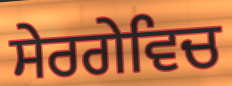
ਸੇਰਗੇਵਿਚ